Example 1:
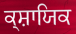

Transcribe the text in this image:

ਕ੍ਸ਼ਾਯਿਕ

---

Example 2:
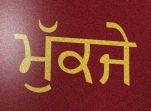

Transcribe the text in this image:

ਮੁੱਕਜੇ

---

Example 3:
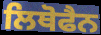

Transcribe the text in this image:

ਲਿਥੋਫੈਨ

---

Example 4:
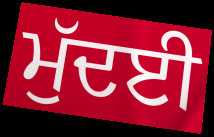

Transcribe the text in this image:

ਮੁੱਦਈ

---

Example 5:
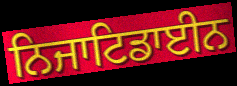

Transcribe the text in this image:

ਨਿਜਾਟਿਡਾਈਨ